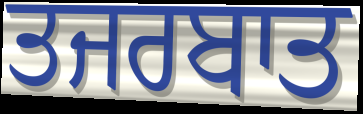
ਤਜਰਬਾਤ